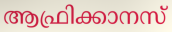
ആഫ്രിക്കാനസ്